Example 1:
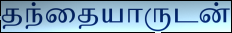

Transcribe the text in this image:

தந்தையாருடன்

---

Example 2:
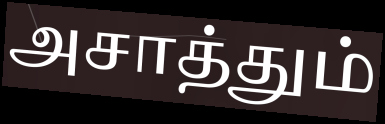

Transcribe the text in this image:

அசாத்தும்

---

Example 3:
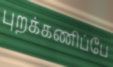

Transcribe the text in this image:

புறக்கணிப்பே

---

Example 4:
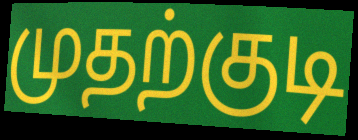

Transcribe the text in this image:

முதற்குடி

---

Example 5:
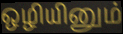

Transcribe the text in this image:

ஒழியினும்